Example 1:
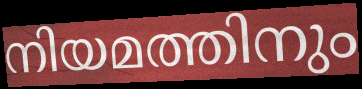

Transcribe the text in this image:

നിയമത്തിനും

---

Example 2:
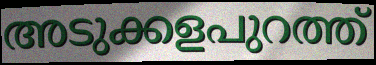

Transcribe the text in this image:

അടുക്കളപുറത്ത്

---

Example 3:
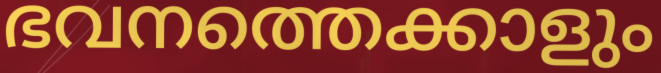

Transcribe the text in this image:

ഭവനത്തെക്കാളും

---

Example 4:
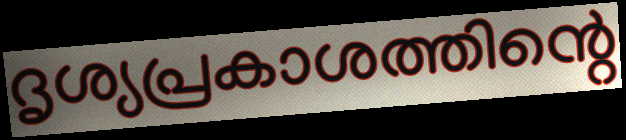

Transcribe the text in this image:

ദൃശ്യപ്രകാശത്തിന്റെ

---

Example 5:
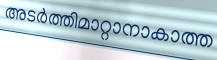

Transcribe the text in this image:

അടർത്തിമാറ്റാനാകാത്ത